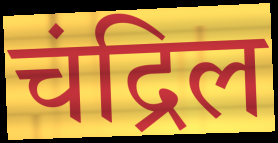
चंद्रिल